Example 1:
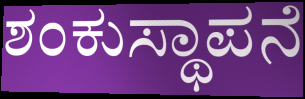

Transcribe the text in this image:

ಶಂಕುಸ್ಥಾಪನೆ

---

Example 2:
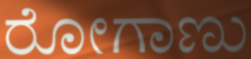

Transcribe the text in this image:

ರೋಗಾಣು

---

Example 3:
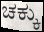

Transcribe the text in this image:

ಚಕ್ಕು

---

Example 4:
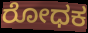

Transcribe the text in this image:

ರೋಧಕ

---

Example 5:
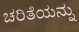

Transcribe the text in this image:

ಚರಿತೆಯನ್ನು